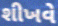
શીખવે